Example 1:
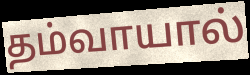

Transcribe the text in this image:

தம்வாயால்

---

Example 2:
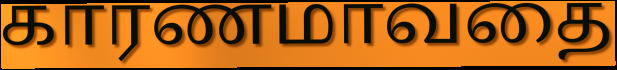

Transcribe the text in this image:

காரணமாவதை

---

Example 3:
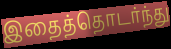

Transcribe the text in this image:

இதைத்தொடர்ந்து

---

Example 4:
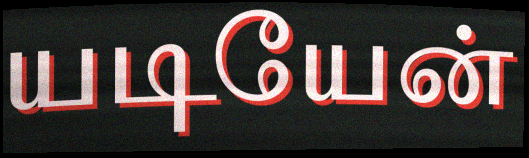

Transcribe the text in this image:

யடியேன்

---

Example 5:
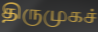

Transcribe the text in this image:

திருமுகச்